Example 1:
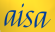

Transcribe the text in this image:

aisa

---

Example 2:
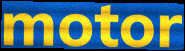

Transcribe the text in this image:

motor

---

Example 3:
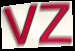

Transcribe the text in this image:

VZ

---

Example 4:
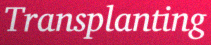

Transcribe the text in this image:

Transplanting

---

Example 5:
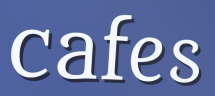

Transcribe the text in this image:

cafes